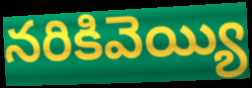
నరికివెయ్యి